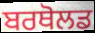
ਬਰਥੋਲਡ